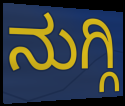
ನುಗ್ಗಿ